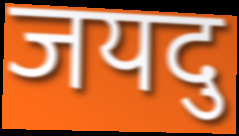
जयदु